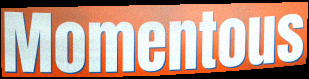
Momentous